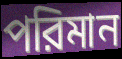
পরিমান